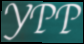
YPP